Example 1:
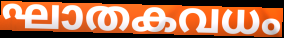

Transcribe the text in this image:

ഘാതകവധം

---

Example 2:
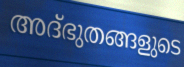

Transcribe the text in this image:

അദ്ഭുതങ്ങളുടെ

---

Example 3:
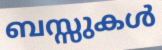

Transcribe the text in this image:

ബസ്സുകൾ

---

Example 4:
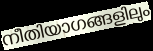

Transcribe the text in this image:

നീതിയാഗങ്ങളിലും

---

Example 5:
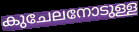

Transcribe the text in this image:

കുചേലനോടുള്ള